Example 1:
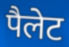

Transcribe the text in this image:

पैलेट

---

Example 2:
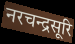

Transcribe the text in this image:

नरचन्द्रसूरि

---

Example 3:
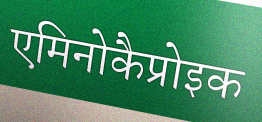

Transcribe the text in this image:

एमिनोकैप्रोइक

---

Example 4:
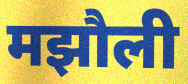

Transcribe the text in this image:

मझौली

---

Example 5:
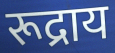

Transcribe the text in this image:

रूद्राय